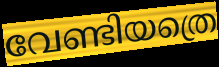
വേണ്ടിയത്രെ